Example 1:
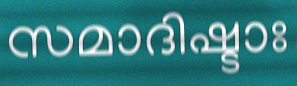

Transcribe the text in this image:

സമാദിഷ്ടാഃ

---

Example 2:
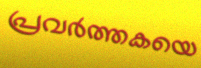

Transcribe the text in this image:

പ്രവർത്തകയെ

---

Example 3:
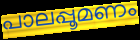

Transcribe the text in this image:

പാലപ്പൂമണം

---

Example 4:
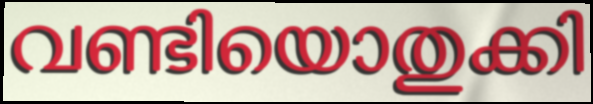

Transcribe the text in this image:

വണ്ടിയൊതുക്കി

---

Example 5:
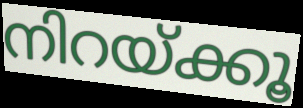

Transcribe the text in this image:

നിറയ്ക്കൂ